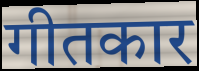
गीतकार